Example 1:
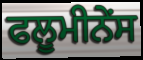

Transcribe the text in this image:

ਫਲੂਮੀਨੇਂਸ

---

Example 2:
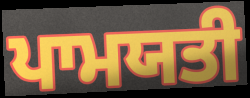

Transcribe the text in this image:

ਪਾਮਯਤੀ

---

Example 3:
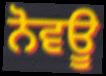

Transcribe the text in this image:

ਨੋਵਊ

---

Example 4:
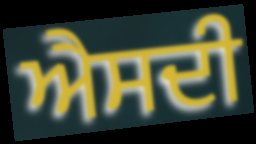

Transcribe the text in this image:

ਐਸਦੀ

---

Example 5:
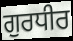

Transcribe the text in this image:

ਗੁਰਧੀਰ